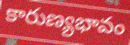
కారుణ్యభావం